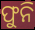
ଫୁନି